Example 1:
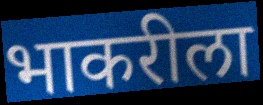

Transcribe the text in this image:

भाकरीला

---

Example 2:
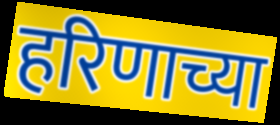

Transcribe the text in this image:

हरिणाच्या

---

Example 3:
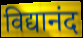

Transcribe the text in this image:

विद्यानंद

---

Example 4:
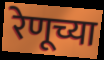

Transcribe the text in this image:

रेणूच्या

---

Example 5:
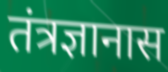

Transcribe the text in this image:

तंत्रज्ञानास